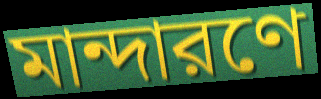
মান্দারণে